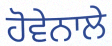
ਹੋਵੇਨਾਲੇ